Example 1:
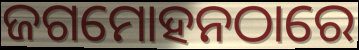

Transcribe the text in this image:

ଜଗମୋହନଠାରେ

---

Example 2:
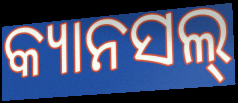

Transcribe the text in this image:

କ୍ୟାନସଲ୍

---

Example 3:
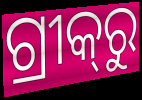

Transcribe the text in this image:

ଗ୍ରୀକ୍‌ରୁ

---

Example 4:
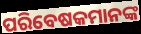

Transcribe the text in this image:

ପରିବେଷକମାନଙ୍କ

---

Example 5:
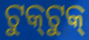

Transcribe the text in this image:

ଟୁକ୍‌ଟୁକ୍